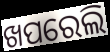
ଖପରେଲି